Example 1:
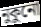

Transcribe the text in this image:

নুকুনো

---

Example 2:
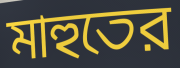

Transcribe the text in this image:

মাহুতের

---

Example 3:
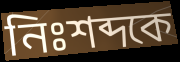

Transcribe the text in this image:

নিঃশব্দকে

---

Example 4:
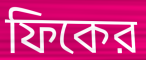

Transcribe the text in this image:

ফিকের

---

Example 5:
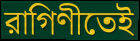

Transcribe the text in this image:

রাগিণীতেই